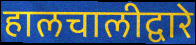
हालचालीद्वारे